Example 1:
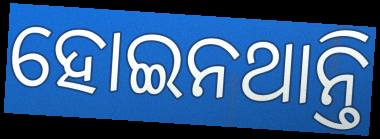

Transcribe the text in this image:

ହୋଇନଥାନ୍ତି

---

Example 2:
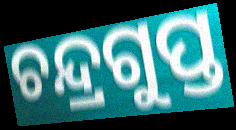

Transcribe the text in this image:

ଚନ୍ଦ୍ରଗୁପ୍ତ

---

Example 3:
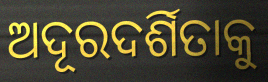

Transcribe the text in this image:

ଅଦୂରଦର୍ଶିତାକୁ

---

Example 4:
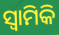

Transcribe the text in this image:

ସ୍ୱାମିକି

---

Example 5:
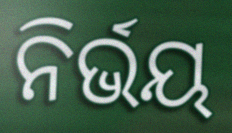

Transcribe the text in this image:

ନିର୍ଭୟ